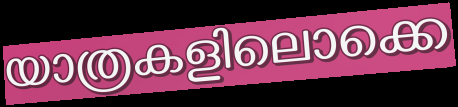
യാത്രകളിലൊക്കെ